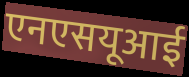
एनएसयूआई